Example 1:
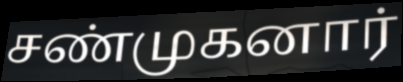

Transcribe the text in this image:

சண்முகனார்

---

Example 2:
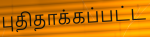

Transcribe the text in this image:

புதிதாக்கப்பட்ட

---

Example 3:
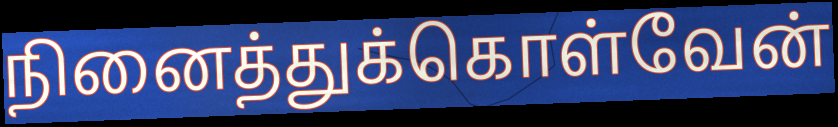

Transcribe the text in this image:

நினைத்துக்கொள்வேன்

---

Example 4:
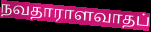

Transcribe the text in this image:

நவதாராளவாதப்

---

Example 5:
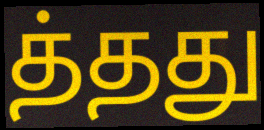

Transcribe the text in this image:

த்தது